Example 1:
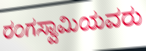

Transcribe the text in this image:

ರಂಗಸ್ವಾಮಿಯವರು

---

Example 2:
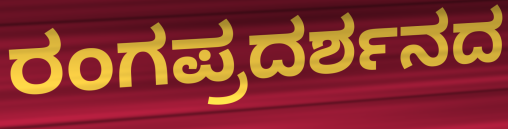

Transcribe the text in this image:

ರಂಗಪ್ರದರ್ಶನದ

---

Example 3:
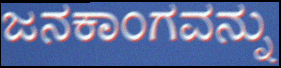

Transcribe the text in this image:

ಜನಕಾಂಗವನ್ನು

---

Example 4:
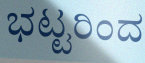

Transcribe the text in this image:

ಭಟ್ಟರಿಂದ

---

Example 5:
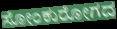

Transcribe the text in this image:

ಸೋಂಕುರೋಗದ